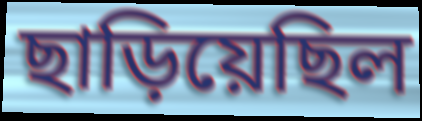
ছাড়িয়েছিল